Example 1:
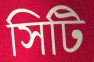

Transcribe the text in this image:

সিটি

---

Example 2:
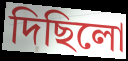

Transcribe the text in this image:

দিছিলো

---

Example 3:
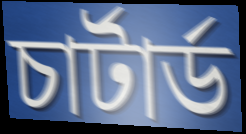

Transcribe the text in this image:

চার্টার্ড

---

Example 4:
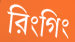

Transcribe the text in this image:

রিংগিং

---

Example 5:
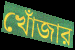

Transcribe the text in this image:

খোঁজার